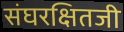
संघरक्षितजी